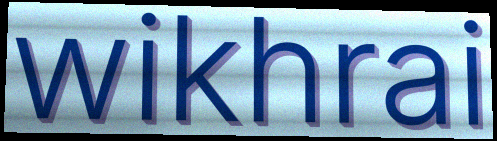
wikhrai